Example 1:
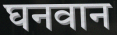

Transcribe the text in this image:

घनवान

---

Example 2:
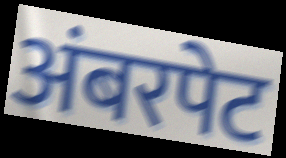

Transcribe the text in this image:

अंबरपेट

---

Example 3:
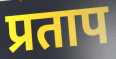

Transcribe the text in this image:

प्रताप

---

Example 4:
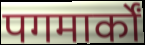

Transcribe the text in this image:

पगमार्कों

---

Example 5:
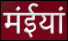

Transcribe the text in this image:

मंईयां